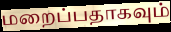
மறைப்பதாகவும்